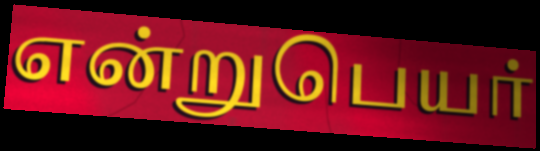
என்றுபெயர்